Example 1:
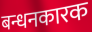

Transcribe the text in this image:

बन्धनकारक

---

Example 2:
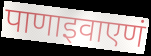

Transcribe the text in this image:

पाणाइवाएणं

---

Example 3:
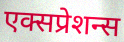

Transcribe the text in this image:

एक्सप्रेशन्स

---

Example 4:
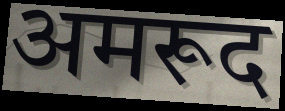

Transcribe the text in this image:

अमरूद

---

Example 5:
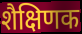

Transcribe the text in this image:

शैक्षिणक